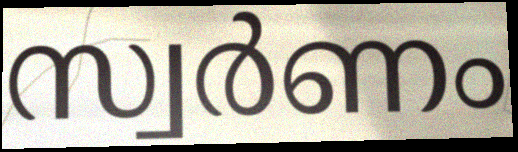
സ്വർണം